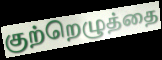
குற்றெழுத்தை